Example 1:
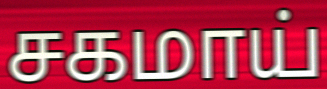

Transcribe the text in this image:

சகமாய்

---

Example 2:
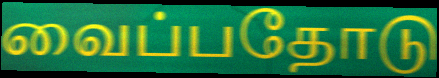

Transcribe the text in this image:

வைப்பதோடு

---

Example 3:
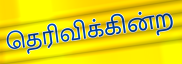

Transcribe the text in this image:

தெரிவிக்கின்ற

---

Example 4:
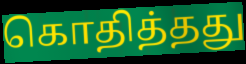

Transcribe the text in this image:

கொதித்தது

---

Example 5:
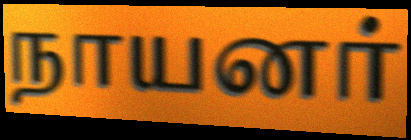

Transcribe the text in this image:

நாயனர்